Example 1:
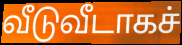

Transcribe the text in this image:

வீடுவீடாகச்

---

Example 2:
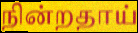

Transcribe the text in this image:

நின்றதாய்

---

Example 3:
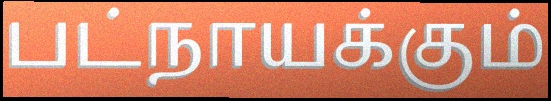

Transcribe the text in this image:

பட்நாயக்கும்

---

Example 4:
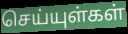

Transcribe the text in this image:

செய்யுள்கள்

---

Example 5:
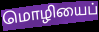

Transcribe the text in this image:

மொழியைப்